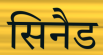
सिनैड